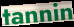
tannin